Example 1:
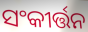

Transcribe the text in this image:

ସଂକୀର୍ତ୍ତନ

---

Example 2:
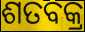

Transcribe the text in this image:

ଶତବକ୍ର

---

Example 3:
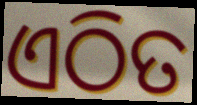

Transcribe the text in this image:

ଏଠିତ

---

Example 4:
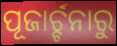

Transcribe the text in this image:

ପୂଜାର୍ଚ୍ଚନାରୁ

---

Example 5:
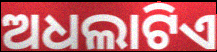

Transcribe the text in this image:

ଅଧଲାଟିଏ